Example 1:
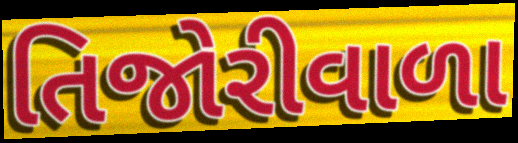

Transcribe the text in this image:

તિજોરીવાળા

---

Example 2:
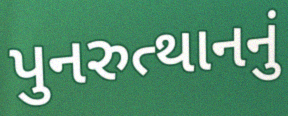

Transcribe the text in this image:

પુનરુત્થાનનું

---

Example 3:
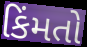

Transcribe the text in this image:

કિંમતો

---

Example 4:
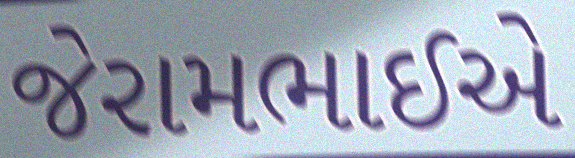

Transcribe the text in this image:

જેરામભાઈએ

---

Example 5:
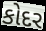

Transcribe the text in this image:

કોદર